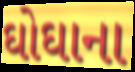
ઘોઘાના